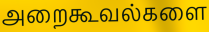
அறைகூவல்களை